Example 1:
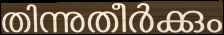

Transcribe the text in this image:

തിന്നുതീർക്കും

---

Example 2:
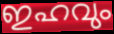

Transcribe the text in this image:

ഇഹവും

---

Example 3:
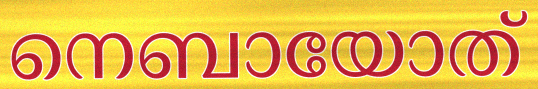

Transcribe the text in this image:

നെബായോത്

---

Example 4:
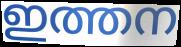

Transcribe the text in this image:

ഇത്തന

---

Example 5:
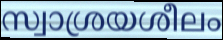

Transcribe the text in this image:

സ്വാശ്രയശീലം